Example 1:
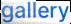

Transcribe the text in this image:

gallery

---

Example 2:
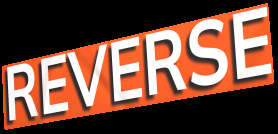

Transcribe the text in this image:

REVERSE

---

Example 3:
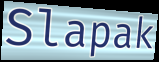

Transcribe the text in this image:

Slapak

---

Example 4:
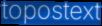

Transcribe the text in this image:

topostext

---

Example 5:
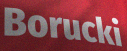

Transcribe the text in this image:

Borucki